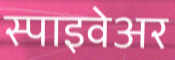
स्पाइवेअर